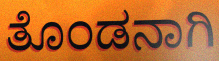
ತೊಂಡನಾಗಿ